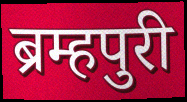
ब्रम्हपुरी